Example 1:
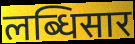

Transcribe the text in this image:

लब्धिसार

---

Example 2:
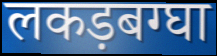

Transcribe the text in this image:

लकड़बग्घा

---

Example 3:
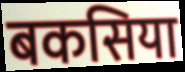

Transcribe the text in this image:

बकसिया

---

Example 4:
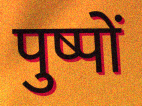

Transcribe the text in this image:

पुष्पों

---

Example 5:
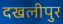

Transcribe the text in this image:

दखलीपुर